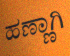
ಹಣ್ಣಾಗಿ